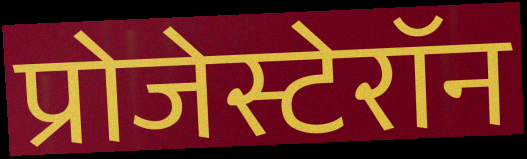
प्रोजेस्टेरॉन